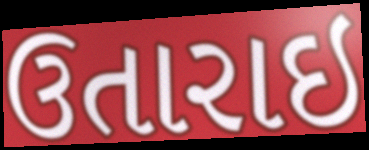
ઉતારાઇ